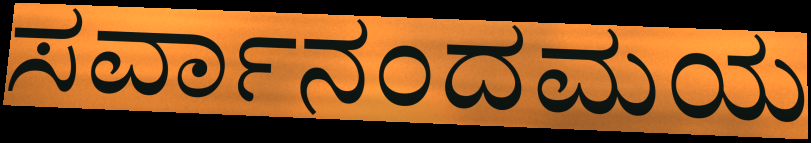
ಸರ್ವಾನಂದಮಯ